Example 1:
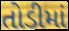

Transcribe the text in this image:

તોડીમાં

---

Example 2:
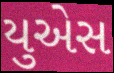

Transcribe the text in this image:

યુએસ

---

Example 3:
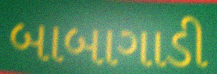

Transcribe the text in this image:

બાબાગાડી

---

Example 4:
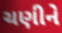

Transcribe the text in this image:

ચણીને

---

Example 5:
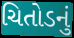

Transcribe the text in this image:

ચિતોડનું